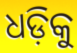
ଧଡ଼ିକୁ